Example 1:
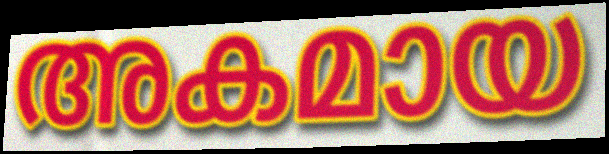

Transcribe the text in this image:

അകമായ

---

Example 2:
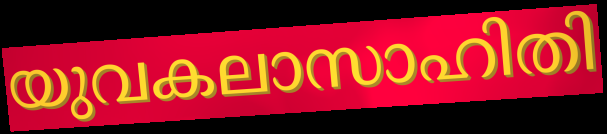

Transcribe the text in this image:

യുവകലാസാഹിതി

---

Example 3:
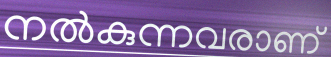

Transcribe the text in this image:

നൽകുന്നവരാണ്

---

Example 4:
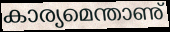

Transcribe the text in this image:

കാര്യമെന്താണു്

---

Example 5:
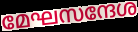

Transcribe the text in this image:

മേഘസന്ദേശ